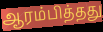
ஆரம்பித்தது